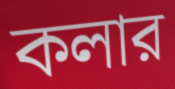
কলার